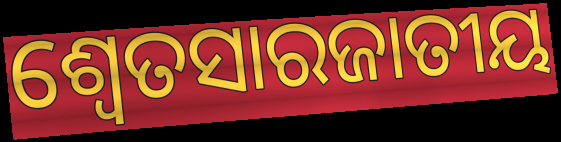
ଶ୍ଵେତସାରଜାତୀୟ